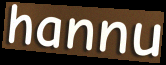
hannu